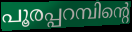
പൂരപ്പറമ്പിന്റെ